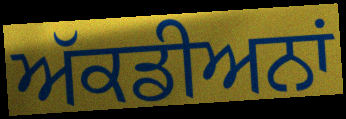
ਅੱਕਡੀਅਨਾਂ